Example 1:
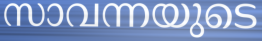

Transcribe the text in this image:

സാവന്നയുടെ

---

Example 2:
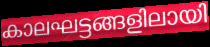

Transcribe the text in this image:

കാലഘട്ടങ്ങളിലായി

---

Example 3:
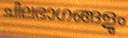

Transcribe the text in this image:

ചിലഭാഗങ്ങളും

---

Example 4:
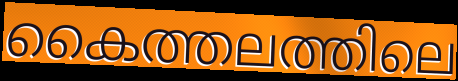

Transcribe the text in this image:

കൈത്തലത്തിലെ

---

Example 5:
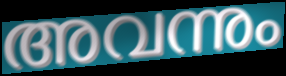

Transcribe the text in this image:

അവന്നും